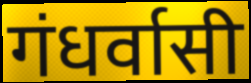
गंधर्वासी